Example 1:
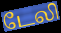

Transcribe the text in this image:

டேலி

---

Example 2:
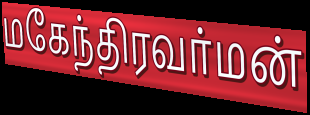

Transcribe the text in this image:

மகேந்திரவர்மன்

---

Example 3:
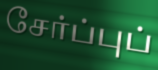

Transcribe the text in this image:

சேர்ப்புப்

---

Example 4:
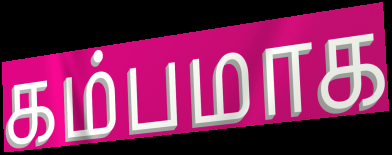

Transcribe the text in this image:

கம்பமாக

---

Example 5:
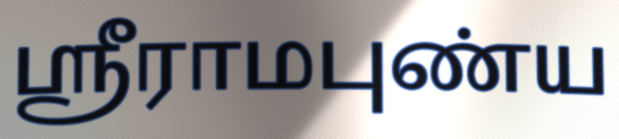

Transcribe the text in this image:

ஸ்ரீராமபுண்ய